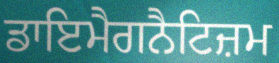
ਡਾਇਮੈਗਨੈਟਿਜ਼ਮ